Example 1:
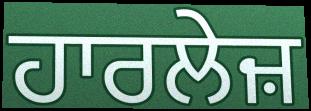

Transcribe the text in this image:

ਹਾਰਲੇਜ਼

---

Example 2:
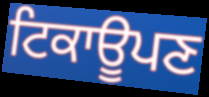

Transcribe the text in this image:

ਟਿਕਾਊਪਣ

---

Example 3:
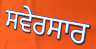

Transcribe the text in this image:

ਸਵੇਰਸਾਰ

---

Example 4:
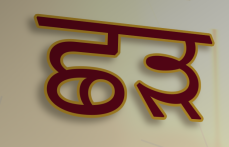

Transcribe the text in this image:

ਛੜ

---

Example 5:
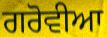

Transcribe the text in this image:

ਗਰੋਵੀਆ